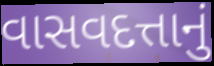
વાસવદત્તાનું